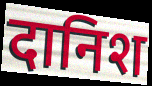
दानिश